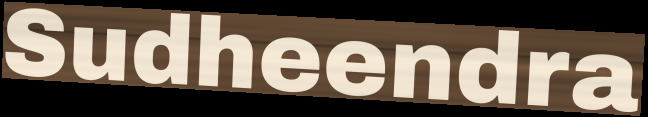
Sudheendra